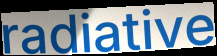
radiative